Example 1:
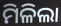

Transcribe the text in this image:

ମିଳିଲା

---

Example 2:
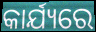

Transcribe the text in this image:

କାର୍ଯ୍ୟରେ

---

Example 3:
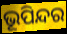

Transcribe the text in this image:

ଭୂପିନ୍ଦର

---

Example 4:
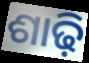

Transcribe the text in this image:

ଶାଢ଼ି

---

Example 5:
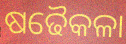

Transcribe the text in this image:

ଷଢୈକଳା